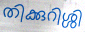
തിക്കുറിശ്ശി